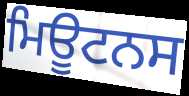
ਮਿਊਟਨਸ